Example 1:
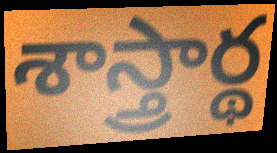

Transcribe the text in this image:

శాస్త్రార్థ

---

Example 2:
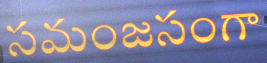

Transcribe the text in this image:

సమంజసంగా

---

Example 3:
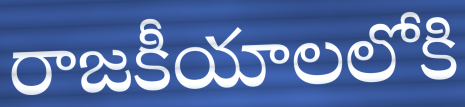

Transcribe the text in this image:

రాజకీయాలలోకి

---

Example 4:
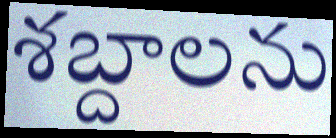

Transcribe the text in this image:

శబ్దాలను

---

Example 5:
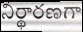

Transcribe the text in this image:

నిర్థారణగా